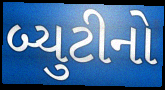
બ્યુટીનો